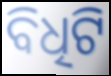
ବିଧିଟି